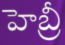
హెబ్రీ